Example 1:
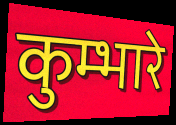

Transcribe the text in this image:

कुम्भारे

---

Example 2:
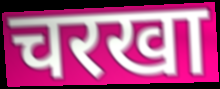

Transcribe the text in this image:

चरखा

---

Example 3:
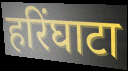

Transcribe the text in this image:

हरिंघाटा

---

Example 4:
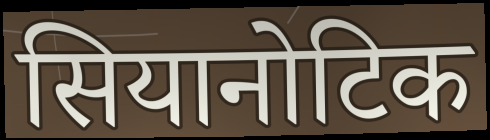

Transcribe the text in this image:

सियानोटिक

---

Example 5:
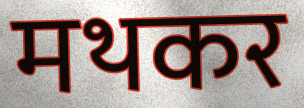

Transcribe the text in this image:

मथकर